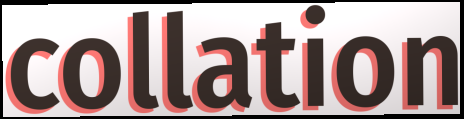
collation